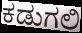
ಕಡುಗಲಿ